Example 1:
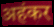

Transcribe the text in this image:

अहंकर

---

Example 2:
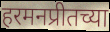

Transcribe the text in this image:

हरमनप्रीतच्या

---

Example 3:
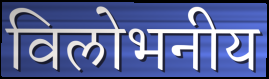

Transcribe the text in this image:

विलोभनीय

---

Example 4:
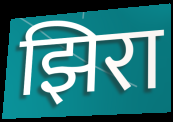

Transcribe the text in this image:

झिरा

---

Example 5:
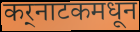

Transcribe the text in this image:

कर्नाटकमधून